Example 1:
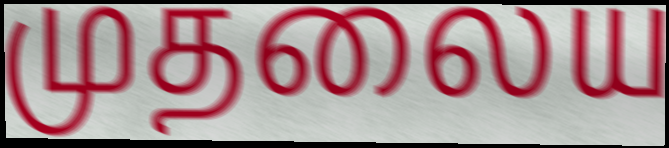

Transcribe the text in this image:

முதலைய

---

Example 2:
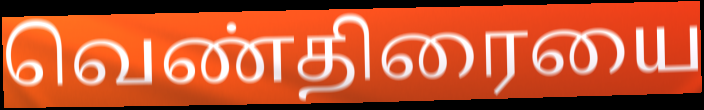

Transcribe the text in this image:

வெண்திரையை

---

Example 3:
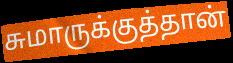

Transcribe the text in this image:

சுமாருக்குத்தான்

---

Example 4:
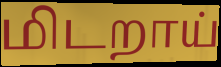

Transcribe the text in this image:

மிடறாய்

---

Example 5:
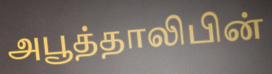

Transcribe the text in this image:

அபூத்தாலிபின்